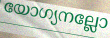
യോഗ്യനല്ലോ